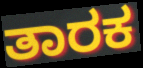
ತಾರಕ